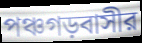
পঞ্চগড়বাসীর